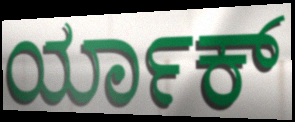
ರ್ಯಾಕ್